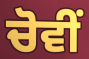
ਚੋਵੀਂ